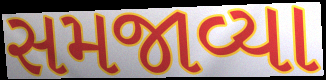
સમજાવ્યા